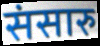
संसारु